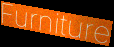
Furniture